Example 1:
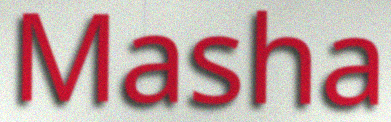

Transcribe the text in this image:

Masha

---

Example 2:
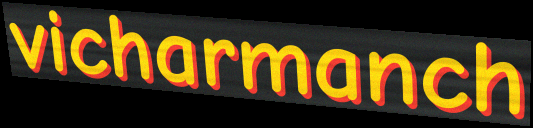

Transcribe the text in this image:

vicharmanch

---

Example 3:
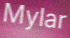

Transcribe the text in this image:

Mylar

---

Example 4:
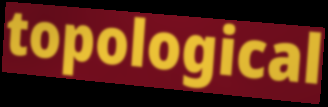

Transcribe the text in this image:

topological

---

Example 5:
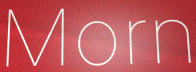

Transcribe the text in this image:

Morn